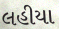
લહીયા